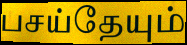
பசய்தேயும்